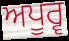
ਅਪੂਰ੍ਵ